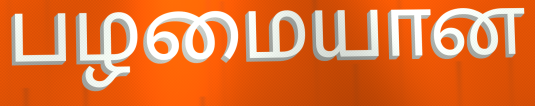
பழமையான